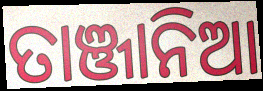
ତାଞ୍ଜାନିଆ